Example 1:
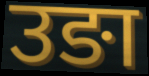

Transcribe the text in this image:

उङा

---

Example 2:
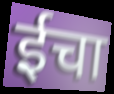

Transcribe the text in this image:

ईचा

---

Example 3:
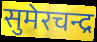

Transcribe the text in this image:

सुमेरचन्द्र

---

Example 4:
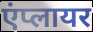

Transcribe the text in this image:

एंप्लायर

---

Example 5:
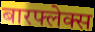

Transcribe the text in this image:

बारफ्लेक्स